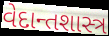
વેદાન્તશાસ્ત્ર